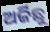
ଅର୍ଜିଛୁ